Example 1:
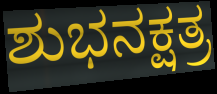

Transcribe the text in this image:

ಶುಭನಕ್ಷತ್ರ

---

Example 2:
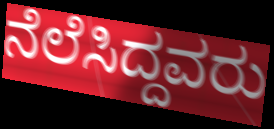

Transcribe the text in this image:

ನೆಲೆಸಿದ್ದವರು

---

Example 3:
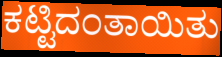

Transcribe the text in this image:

ಕಟ್ಟಿದಂತಾಯಿತು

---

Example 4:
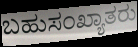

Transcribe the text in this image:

ಬಹುಸಂಖ್ಯಾತರು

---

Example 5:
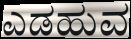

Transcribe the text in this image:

ಎಡಹುವ